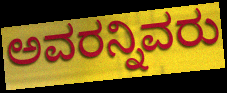
ಅವರನ್ನಿವರು